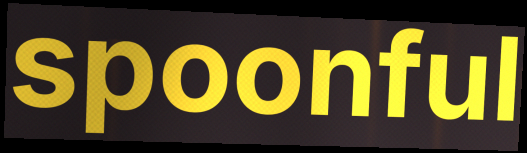
spoonful